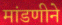
मांडणीने